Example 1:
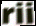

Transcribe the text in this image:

rii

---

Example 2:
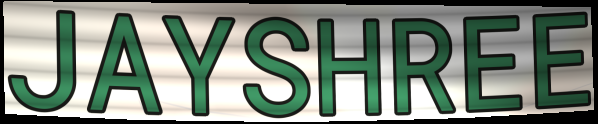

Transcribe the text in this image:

JAYSHREE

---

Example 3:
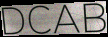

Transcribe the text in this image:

DCAB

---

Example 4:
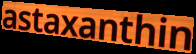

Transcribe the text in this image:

astaxanthin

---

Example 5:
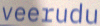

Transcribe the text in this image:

veerudu